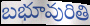
బభూవురితి